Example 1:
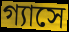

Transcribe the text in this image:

গ্যাসে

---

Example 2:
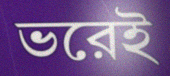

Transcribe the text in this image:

ভরেই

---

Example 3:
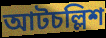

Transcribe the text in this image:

আটচল্লিশ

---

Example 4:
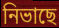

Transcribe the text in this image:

নিভাছে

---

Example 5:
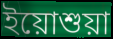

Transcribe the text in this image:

ইয়োশুয়া